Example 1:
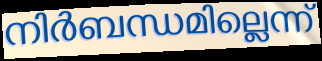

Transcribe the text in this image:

നിർബന്ധമില്ലെന്ന്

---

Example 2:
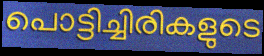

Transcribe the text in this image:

പൊട്ടിച്ചിരികളുടെ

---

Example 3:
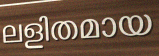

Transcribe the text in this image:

ലളിതമായ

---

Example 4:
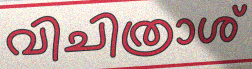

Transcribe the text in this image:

വിചിത്രാശ്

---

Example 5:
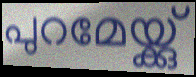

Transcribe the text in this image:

പുറമേയ്ക്കു്